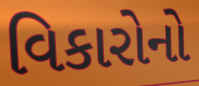
વિકારોનો